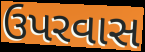
ઉપરવાસ